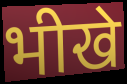
भीखे